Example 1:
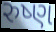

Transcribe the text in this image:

રુષ્ણ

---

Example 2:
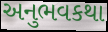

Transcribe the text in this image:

અનુભવકથા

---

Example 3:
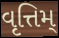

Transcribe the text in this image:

વૃત્તિમ્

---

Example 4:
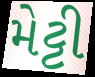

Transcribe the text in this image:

મેટ્ટી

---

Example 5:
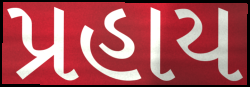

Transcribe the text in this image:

પ્રહાય